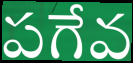
పగేవ